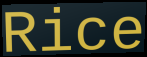
Rice